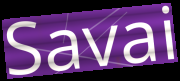
Savai